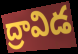
ద్రావిడ